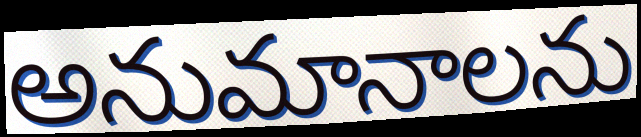
అనుమానాలను